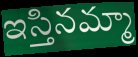
ఇస్తినమ్మా